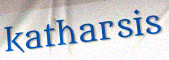
katharsis